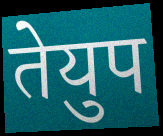
तेयुप